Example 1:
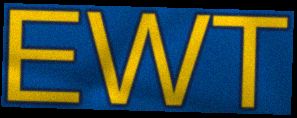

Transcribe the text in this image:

EWT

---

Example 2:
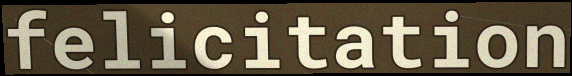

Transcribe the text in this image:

felicitation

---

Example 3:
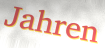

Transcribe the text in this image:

Jahren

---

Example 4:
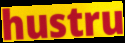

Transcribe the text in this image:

hustru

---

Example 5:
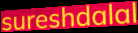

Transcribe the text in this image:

sureshdalal